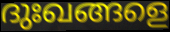
ദുഃഖങ്ങളെ